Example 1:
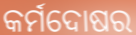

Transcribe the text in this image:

କର୍ମଦୋଷର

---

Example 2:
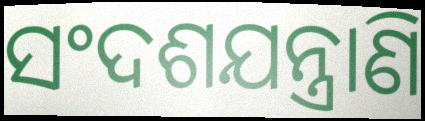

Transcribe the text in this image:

ସଂଦଶଯନ୍ତ୍ରାଣି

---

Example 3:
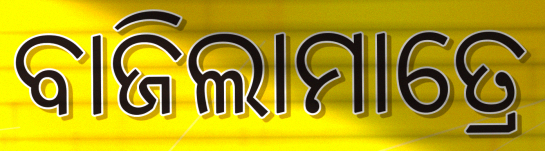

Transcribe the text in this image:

ବାଜିଲାମାତ୍ରେ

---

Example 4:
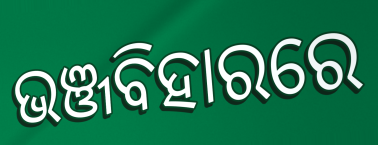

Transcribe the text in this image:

ଭଞ୍ଜବିହାରରେ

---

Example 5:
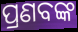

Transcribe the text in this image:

ପ୍ରଣବଙ୍କ